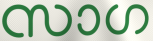
സാഗ